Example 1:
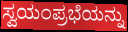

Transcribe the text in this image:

ಸ್ವಯಂಪ್ರಭೆಯನ್ನು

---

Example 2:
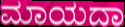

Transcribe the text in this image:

ಮಾಯದಾ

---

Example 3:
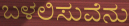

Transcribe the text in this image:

ಬಳಲಿಸುವೆನು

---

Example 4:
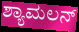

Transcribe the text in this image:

ಶ್ಯಾಮಲನ್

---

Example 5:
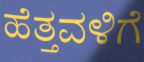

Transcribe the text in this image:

ಹೆತ್ತವಳಿಗೆ